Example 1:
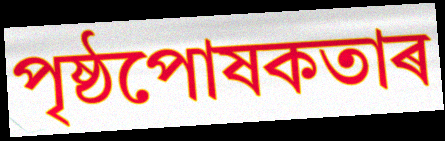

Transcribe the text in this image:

পৃষ্ঠপোষকতাৰ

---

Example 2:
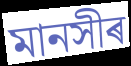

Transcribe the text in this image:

মানসীৰ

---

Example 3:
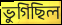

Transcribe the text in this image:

ভুগিছিল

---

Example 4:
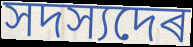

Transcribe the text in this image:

সদস্যদেৰ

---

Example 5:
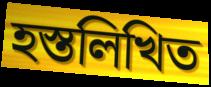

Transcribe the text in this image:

হস্তলিখিত